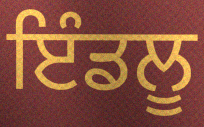
ਇੰਡਲੂ